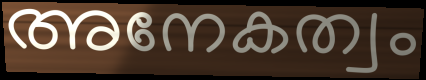
അനേകത്വം